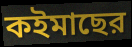
কইমাছের